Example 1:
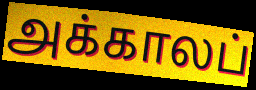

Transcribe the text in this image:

அக்காலப்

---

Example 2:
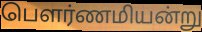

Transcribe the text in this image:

பெளர்ணமியன்று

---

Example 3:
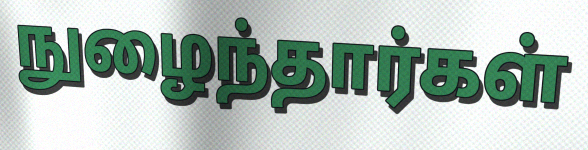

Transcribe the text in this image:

நுழைந்தார்கள்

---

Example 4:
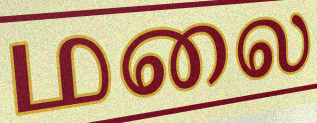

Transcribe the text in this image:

மலை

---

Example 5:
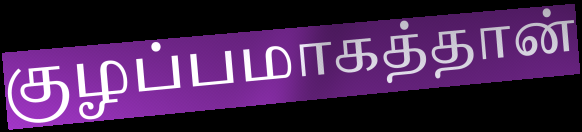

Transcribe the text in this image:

குழப்பமாகத்தான்